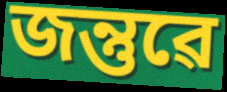
জন্তুৱে